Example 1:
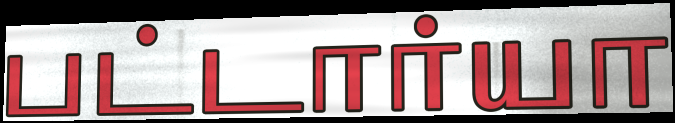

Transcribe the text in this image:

பட்டார்யா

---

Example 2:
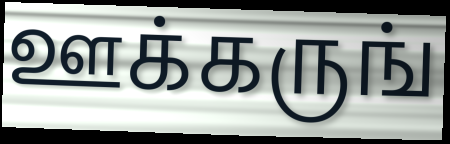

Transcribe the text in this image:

ஊக்கருங்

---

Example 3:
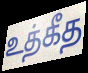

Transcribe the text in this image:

உத்கீத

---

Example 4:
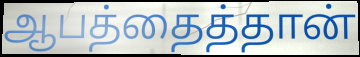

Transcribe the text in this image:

ஆபத்தைத்தான்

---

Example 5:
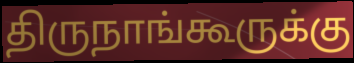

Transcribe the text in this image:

திருநாங்கூருக்கு